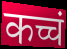
कच्चं